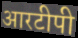
आरटीपी